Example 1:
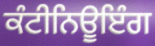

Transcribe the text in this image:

ਕੰਟੀਨਿਊਇੰਗ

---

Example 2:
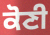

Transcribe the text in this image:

ਕੋਣੀ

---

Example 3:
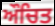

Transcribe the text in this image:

ਔਚਿਤ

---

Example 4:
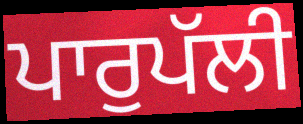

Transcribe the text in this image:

ਪਾਰੁਪੱਲੀ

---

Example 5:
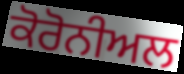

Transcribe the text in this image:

ਕੋਰੋਨੀਅਲ